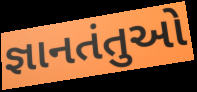
જ્ઞાનતંતુઓ